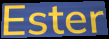
Ester